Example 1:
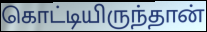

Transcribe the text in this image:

கொட்டியிருந்தான்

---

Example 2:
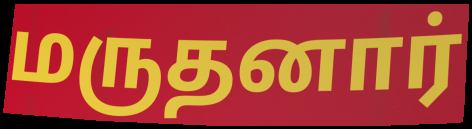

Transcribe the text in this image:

மருதனார்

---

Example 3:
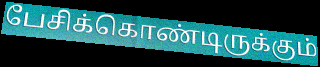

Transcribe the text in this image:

பேசிக்கொண்டிருக்கும்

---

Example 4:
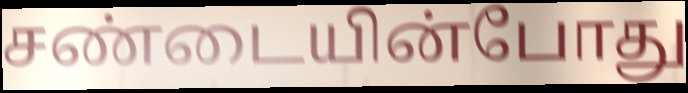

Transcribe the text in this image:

சண்டையின்போது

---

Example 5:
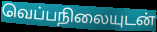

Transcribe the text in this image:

வெப்பநிலையுடன்